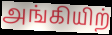
அங்கியிற்